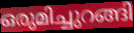
ഒരുമിച്ചുറങ്ങി